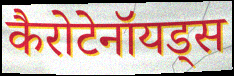
कैरोटेनॉयड्स